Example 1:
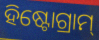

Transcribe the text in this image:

ହିଷ୍ଟୋଗ୍ରାମ୍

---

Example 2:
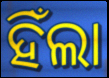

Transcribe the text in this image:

ହିଁଲା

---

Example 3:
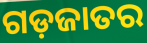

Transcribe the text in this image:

ଗଡ଼ଜାତର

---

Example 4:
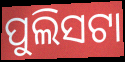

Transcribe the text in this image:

ପୁଲିସଟା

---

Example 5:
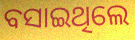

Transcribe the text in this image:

ବସାଇଥିଲେ